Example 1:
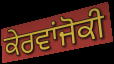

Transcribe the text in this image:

ਕੇਰਵਾਂਜੋਕੀ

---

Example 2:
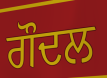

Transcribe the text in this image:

ਗੌਦਲ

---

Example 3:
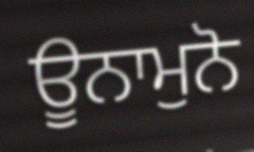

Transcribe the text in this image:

ਊਨਾਮੁਨੋ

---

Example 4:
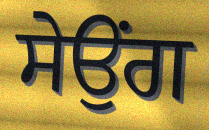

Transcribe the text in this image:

ਸੇਉਂਗ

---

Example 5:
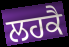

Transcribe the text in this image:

ਲਹਕੈ